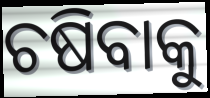
ଚଷିବାକୁ